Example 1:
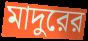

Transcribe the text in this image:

মাদুরের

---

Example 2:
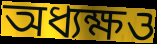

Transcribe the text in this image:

অধ্যক্ষও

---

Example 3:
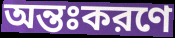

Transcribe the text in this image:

অন্তঃকরণে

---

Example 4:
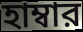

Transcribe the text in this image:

হাম্বার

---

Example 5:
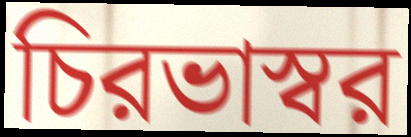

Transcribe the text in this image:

চিরভাস্বর